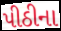
પીઠીના